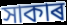
সাকাৰ